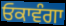
ਓਕਾਵੰਗਾ